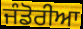
ਜੰਡੋਰੀਆ